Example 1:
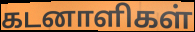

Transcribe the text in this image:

கடனாளிகள்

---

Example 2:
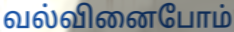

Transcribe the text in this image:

வல்வினைபோம்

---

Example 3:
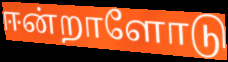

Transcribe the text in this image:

ஈன்றாளோடு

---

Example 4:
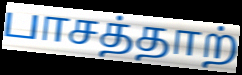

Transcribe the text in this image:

பாசத்தாற்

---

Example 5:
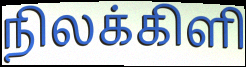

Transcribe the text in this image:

நிலக்கிளி